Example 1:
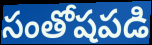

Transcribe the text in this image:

సంతోషపడి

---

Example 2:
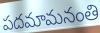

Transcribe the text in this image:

పదమామనంతి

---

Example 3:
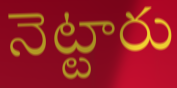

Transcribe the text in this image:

నెట్టారు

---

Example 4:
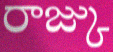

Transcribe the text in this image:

రాజ్కు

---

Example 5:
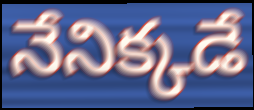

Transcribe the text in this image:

నేనిక్కడే